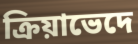
ক্রিয়াভেদে